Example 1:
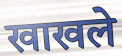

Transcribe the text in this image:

खाखले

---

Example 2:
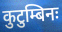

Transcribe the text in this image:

कुटुम्बिनः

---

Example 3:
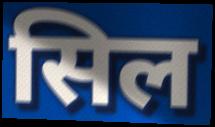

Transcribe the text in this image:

सिल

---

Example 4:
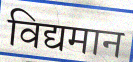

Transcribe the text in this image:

विद्यमान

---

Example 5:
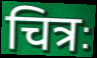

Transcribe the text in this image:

चित्रः